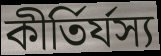
কীর্তির্যস্য